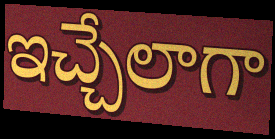
ఇచ్చేలాగా